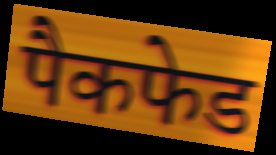
पैकफेड